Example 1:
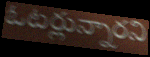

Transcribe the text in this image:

ఓటర్లున్నారని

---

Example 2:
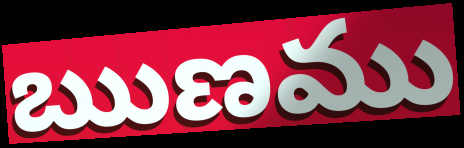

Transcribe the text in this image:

ఋణము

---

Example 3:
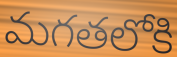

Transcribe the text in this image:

మగతలోకి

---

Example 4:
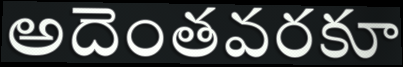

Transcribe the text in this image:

అదెంతవరకూ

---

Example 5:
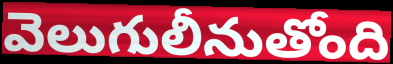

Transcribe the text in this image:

వెలుగులీనుతోంది